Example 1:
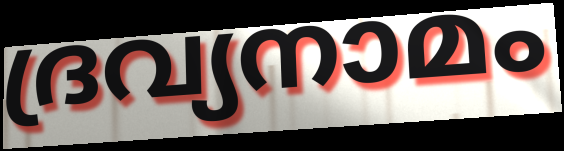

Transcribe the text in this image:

ദ്രവ്യനാമം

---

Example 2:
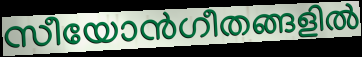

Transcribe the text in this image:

സീയോൻഗീതങ്ങളിൽ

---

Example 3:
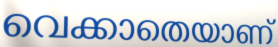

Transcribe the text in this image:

വെക്കാതെയാണ്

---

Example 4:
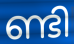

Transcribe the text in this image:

ണ്ടി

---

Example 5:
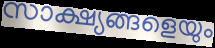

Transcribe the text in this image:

സാക്ഷ്യങ്ങളെയും